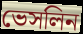
ভেসলিন